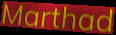
Marthad